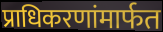
प्राधिकरणांमार्फत